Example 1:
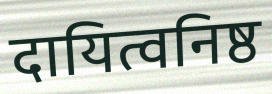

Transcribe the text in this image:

दायित्वनिष्ठ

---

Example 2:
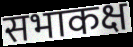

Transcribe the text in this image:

सभाकक्ष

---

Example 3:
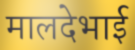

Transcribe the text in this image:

मालदेभाई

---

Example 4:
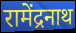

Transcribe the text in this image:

रामेंद्रनाथ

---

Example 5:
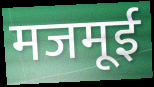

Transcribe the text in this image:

मजमूई